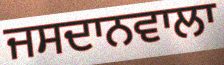
ਜਸਦਾਨਵਾਲਾ